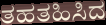
ತಹತಹಿಸಿದ